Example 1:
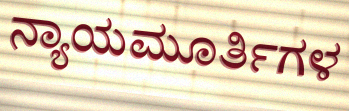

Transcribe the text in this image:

ನ್ಯಾಯಮೂರ್ತಿಗಳ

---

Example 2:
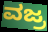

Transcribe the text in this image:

ವಜ್ರ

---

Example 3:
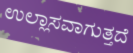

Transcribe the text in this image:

ಉಲ್ಲಾಸವಾಗುತ್ತದೆ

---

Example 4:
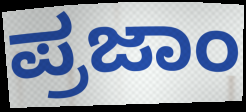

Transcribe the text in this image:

ಪ್ರಜಾಂ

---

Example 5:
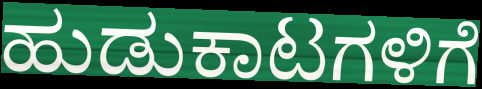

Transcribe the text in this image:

ಹುಡುಕಾಟಗಳಿಗೆ